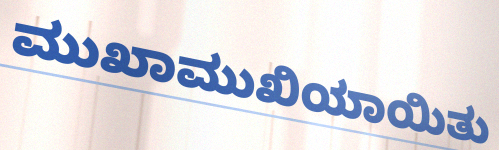
ಮುಖಾಮುಖಿಯಾಯಿತು